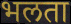
भलता